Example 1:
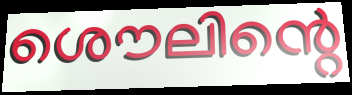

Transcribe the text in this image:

ശൌലിന്റെ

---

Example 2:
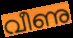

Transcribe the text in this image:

വീണു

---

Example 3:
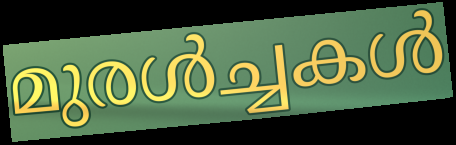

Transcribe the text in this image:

മുരൾച്ചകൾ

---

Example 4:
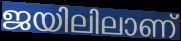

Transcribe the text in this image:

ജയിലിലാണ്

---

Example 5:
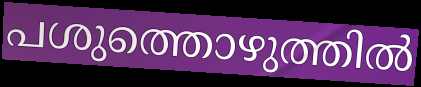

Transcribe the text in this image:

പശുത്തൊഴുത്തിൽ